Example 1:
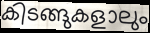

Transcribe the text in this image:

കിടങ്ങുകളാലും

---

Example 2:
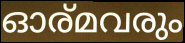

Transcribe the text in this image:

ഓര്മവരും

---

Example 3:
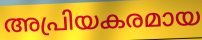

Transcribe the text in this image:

അപ്രിയകരമായ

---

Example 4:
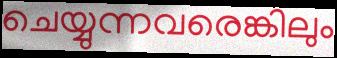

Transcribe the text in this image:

ചെയ്യുന്നവരെങ്കിലും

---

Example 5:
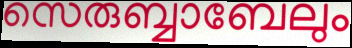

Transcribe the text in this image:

സെരുബ്ബാബേലും